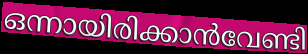
ഒന്നായിരിക്കാൻവേണ്ടി